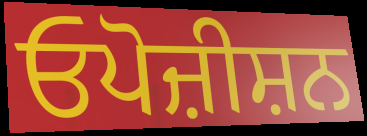
ਓਪੋਜ਼ੀਸ਼ਨ